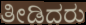
ತೀಡಿದರು